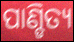
ପାଣ୍ଡିତ୍ୟ